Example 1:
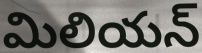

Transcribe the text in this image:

మిలియన్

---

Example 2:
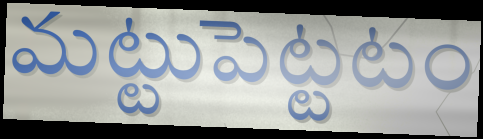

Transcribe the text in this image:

మట్టుపెట్టటం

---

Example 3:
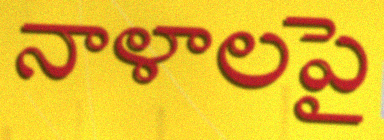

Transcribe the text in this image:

నాళాలపై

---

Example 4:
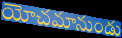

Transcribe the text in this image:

యోచమానుండు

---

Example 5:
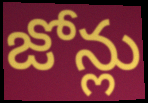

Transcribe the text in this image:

జోన్లు